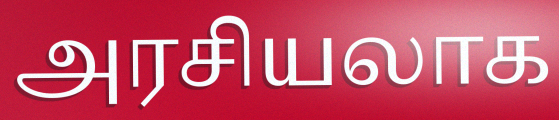
அரசியலாக